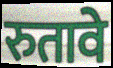
रुतावे